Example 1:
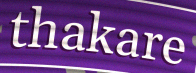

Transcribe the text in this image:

thakare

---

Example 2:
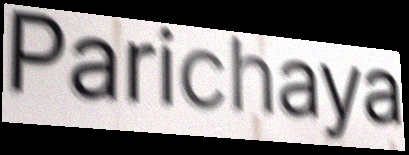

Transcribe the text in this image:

Parichaya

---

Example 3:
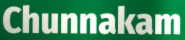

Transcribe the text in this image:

Chunnakam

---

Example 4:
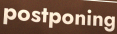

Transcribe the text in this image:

postponing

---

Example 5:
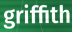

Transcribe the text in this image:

griffith